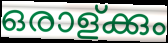
ഒരാള്ക്കും